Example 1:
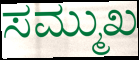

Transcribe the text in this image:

ಸಮ್ಮುಖ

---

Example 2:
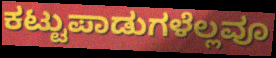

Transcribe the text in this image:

ಕಟ್ಟುಪಾಡುಗಳೆಲ್ಲವೂ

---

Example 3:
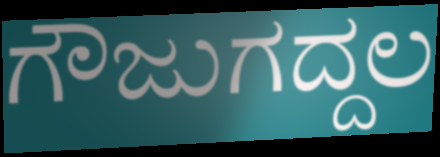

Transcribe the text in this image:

ಗೌಜುಗದ್ದಲ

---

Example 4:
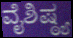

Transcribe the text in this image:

ವೈಶಿಷ್ಠ್ಯ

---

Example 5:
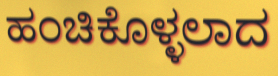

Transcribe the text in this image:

ಹಂಚಿಕೊಳ್ಳಲಾದ